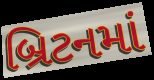
બ્રિટનમાં